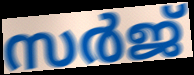
സർജ്